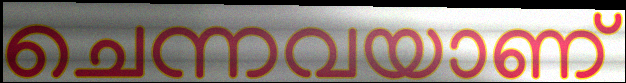
ചെന്നവയാണ്